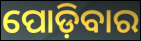
ପୋଡ଼ିବାର